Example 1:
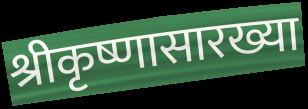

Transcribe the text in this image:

श्रीकृष्णासारख्या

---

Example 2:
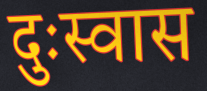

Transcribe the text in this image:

दुःस्वास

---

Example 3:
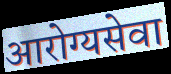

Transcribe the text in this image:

आरोग्यसेवा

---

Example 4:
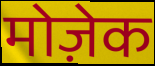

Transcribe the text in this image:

मोज़ेक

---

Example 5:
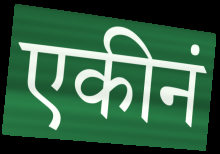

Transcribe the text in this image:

एकीनं